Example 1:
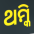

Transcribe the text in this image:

ଥମ୍କି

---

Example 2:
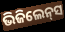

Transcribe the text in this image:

ଭିଜିଲେନ୍‌ସ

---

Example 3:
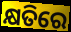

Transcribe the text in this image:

କ୍ଷତିରେ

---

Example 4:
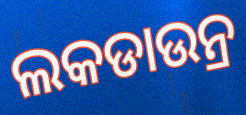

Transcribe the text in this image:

ଲକଡାଉନ୍ର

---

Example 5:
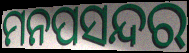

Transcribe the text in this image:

ମନପସନ୍ଦର